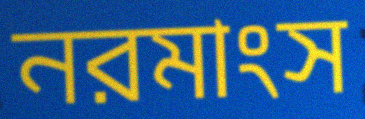
নরমাংস